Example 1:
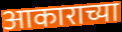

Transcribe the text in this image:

आकाराच्या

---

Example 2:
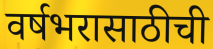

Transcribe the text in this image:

वर्षभरासाठीची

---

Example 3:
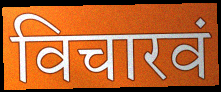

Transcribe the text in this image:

विचारवं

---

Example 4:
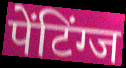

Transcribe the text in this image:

पेंटिंग्ज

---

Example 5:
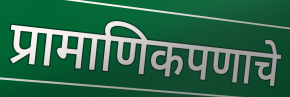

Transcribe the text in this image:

प्रामाणिकपणाचे